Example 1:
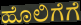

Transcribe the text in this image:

ಹೊಲಿಗೆಗೆ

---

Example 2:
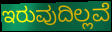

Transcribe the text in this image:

ಇರುವುದಿಲ್ಲವೆ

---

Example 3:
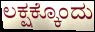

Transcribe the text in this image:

ಲಕ್ಷಕ್ಕೊಂದು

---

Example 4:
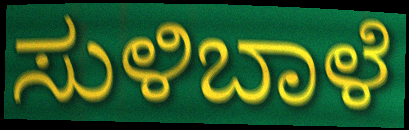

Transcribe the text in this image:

ಸುಳಿಬಾಳೆ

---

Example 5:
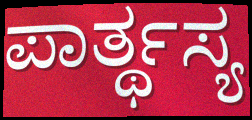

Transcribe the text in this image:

ಪಾರ್ತ್ಥಸ್ಯ